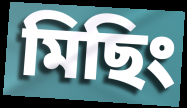
মিছিং